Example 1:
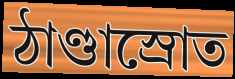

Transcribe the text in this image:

ঠাণ্ডাস্রোত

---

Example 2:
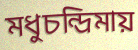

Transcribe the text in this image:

মধুচন্দ্রিমায়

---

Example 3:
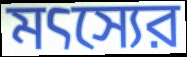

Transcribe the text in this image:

মৎস্যের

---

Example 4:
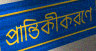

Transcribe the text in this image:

প্রান্তিকীকরণে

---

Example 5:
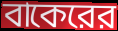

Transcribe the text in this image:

বাকেরের